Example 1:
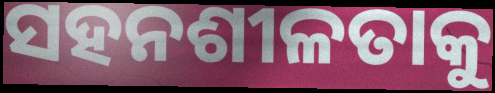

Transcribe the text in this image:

ସହନଶୀଳତାକୁ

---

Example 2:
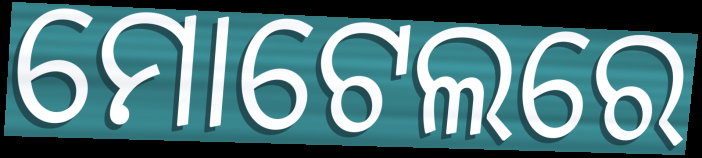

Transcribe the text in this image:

ମୋଟେଲରେ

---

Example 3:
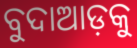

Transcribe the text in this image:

ବୁଦାଆଡ଼କୁ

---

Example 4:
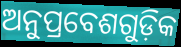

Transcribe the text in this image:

ଅନୁପ୍ରବେଶଗୁଡ଼ିକ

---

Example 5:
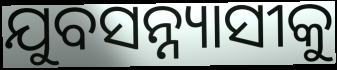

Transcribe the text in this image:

ଯୁବସନ୍ନ୍ୟାସୀକୁ